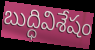
బుద్ధివిశేషం